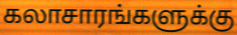
கலாசாரங்களுக்கு